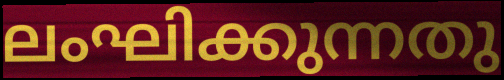
ലംഘിക്കുന്നതു